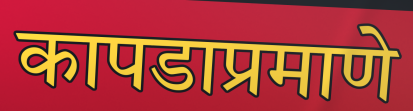
कापडाप्रमाणे